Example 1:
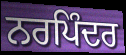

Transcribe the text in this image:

ਨਰਪਿੰਦਰ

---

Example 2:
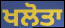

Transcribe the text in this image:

ਖਲੋਤਾ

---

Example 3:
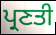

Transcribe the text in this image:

ਪ੍ਰਣਤੀ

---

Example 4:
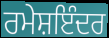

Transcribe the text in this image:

ਰਮੇਸ਼ਇੰਦਰ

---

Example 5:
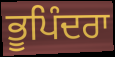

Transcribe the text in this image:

ਭੂਪਿੰਦਰਾ